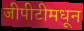
जीपीटीमधून